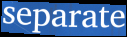
separate